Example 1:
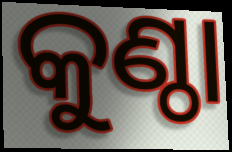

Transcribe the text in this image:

କୁଣ୍ଠା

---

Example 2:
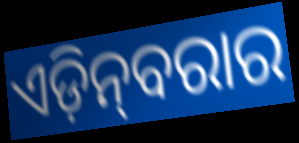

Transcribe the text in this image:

ଏଡ଼ିନ୍‍ବରାର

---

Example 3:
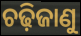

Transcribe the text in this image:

ଚଢ଼ିଜାଣୁ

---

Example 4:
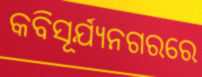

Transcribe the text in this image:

କବିସୂର୍ଯ୍ୟନଗରରେ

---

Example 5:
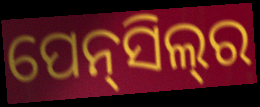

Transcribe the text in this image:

ପେନ୍‌ସିଲ୍‌ର